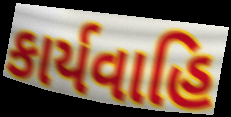
કાર્યવાહિ